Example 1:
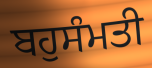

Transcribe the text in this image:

ਬਹੁਸੰਮਤੀ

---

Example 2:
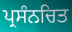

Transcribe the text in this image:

ਪ੍ਰਸੰਨਚਿਤ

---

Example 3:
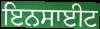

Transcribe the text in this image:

ਇਨਸਾਈਟ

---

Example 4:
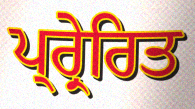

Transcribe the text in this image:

ਪ੍ਰ੍ਰੇਰਿਤ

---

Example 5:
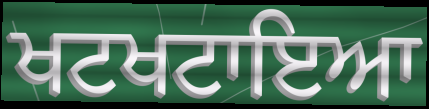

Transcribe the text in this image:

ਖਟਖਟਾਇਆ